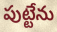
పుట్టేను